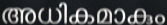
അധികമാകും